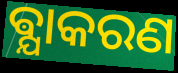
ଵ୍ଯାକରଣ